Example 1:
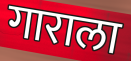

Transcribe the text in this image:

गाराला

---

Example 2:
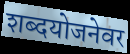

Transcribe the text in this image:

शब्दयोजनेवर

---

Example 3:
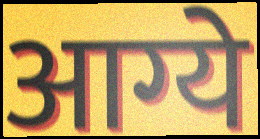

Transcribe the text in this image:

आग्ये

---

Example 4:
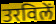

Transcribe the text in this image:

उरविलें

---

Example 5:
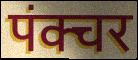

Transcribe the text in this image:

पंक्चर